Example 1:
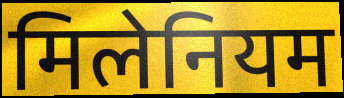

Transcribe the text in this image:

मिलेनियम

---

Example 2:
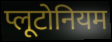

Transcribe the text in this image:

प्लूटोनियम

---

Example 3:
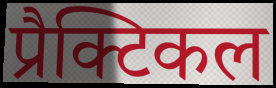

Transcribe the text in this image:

प्रैक्टिकल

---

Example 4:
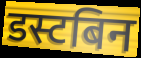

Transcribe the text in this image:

डस्टबिन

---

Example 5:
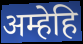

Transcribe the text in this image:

अम्हेहि